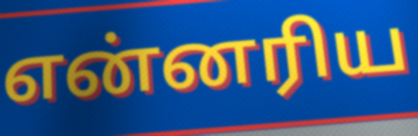
என்னரிய